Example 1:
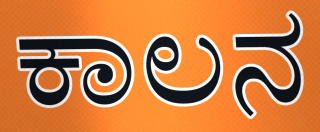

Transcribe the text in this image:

ಕಾಲನ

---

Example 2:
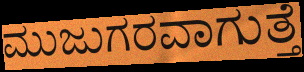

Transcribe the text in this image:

ಮುಜುಗರವಾಗುತ್ತೆ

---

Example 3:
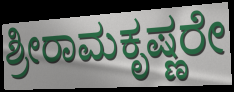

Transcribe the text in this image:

ಶ್ರೀರಾಮಕೃಷ್ಣರೇ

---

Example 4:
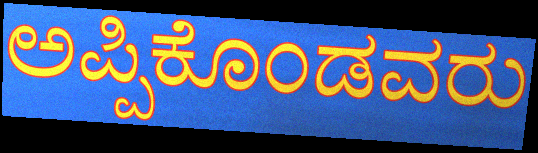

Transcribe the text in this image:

ಅಪ್ಪಿಕೊಂಡವರು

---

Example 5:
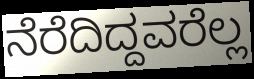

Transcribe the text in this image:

ನೆರೆದಿದ್ದವರೆಲ್ಲ